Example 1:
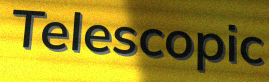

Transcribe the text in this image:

Telescopic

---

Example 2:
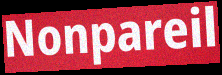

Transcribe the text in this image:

Nonpareil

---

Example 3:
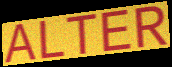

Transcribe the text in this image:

ALTER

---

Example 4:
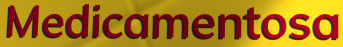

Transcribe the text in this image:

Medicamentosa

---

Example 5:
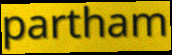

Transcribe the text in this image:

partham